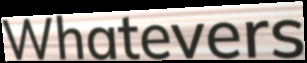
Whatevers